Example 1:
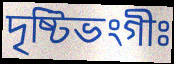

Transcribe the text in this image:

দৃষ্টিভংগীঃ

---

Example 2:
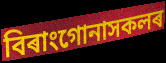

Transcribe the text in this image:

বিৰাংগোনাসকলৰ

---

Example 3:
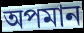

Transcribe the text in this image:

অপমান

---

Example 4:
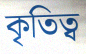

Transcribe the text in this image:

কৃতিত্ব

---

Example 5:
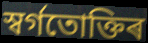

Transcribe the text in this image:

স্বৰ্গতোক্তিৰ